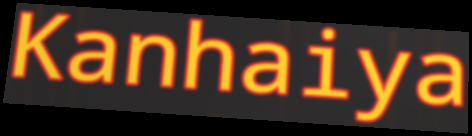
Kanhaiya